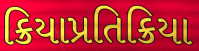
ક્રિયાપ્રતિક્રિયા